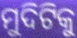
ମୁଦିଟିକୁ